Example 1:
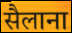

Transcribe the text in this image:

सैलाना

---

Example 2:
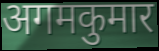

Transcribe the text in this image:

अगमकुमार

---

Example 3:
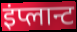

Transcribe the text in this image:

इंप्लान्ट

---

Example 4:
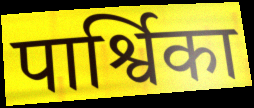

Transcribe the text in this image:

पार्श्विका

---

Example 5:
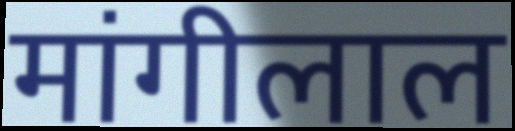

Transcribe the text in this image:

मांगीलाल